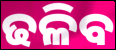
ଢଳିବ